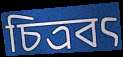
চিত্রবৎ